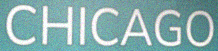
CHICAGO